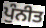
ਪੁੰਨੀਤ